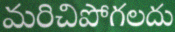
మరిచిపోగలదు